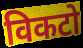
विकटो